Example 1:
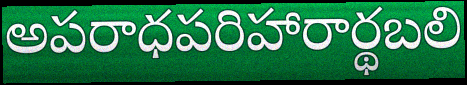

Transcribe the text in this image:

అపరాధపరిహారార్థబలి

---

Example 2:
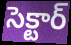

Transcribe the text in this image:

సెక్టార్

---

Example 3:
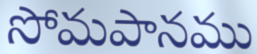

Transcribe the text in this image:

సోమపానము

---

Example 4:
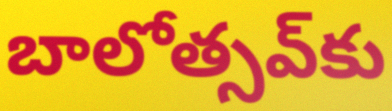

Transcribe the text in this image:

బాలోత్సవ్‌కు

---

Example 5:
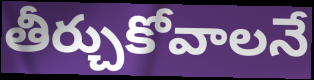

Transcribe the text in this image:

తీర్చుకోవాలనే